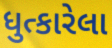
ધુત્કારેલા